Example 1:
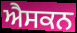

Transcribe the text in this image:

ਐਸਕਨ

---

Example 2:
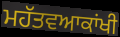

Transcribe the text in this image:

ਮਹੱਤਵਆਕਾਂਖੀ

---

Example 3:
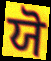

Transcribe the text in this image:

ਯੋ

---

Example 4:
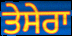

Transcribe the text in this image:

ਤੇਸੇਰਾ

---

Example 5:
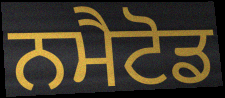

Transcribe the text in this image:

ਨਮੈਟੋਡ